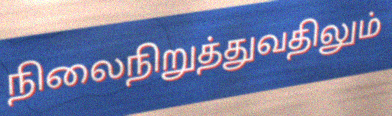
நிலைநிறுத்துவதிலும்